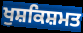
ਖੁਸ਼ਕਿਸ਼ਮਤ